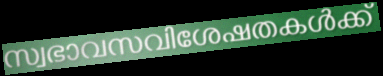
സ്വഭാവസവിശേഷതകൾക്ക്